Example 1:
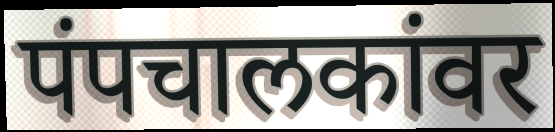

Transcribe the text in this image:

पंपचालकांवर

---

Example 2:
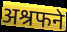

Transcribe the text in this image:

अश्रफने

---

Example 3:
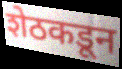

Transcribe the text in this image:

शेठकडून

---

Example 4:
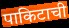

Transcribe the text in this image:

पाकिटाची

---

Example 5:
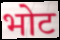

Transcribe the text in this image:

भोट